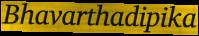
Bhavarthadipika